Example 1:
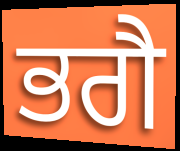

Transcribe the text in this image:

ਭਗੈ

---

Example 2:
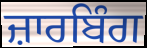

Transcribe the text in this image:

ਜ਼ਾਰਬਿੰਗ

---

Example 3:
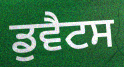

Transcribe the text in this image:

ਡੁਵੈਟਸ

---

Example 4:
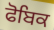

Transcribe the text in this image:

ਫੋਬਿਕ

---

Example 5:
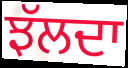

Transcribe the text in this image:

ਝੱਲਦਾ